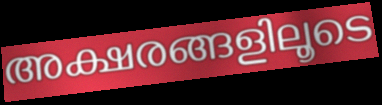
അക്ഷരങ്ങളിലൂടെ